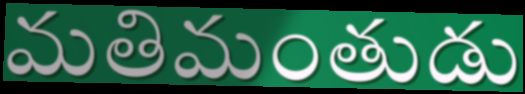
మతిమంతుడు